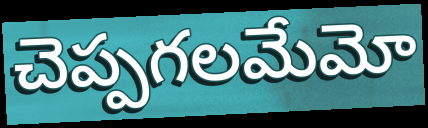
చెప్పగలమేమో